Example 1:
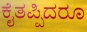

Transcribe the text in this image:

ಕೈತಪ್ಪಿದರೂ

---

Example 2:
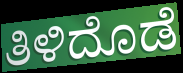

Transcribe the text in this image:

ತಿಳಿದೊಡೆ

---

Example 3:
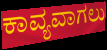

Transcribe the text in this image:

ಕಾವ್ಯವಾಗಲು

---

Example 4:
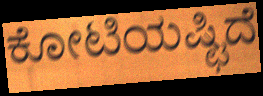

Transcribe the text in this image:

ಕೋಟಿಯಷ್ಟಿದೆ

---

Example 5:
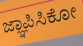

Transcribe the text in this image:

ಜ್ಞಾಪಿಸಿಕೋ